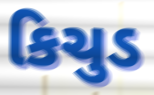
કિચુડ